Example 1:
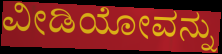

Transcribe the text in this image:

ವೀಡಿಯೋವನ್ನು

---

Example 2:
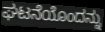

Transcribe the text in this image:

ಘಟನೆಯೊಂದನ್ನು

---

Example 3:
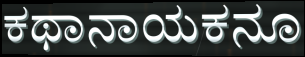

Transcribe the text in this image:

ಕಥಾನಾಯಕನೂ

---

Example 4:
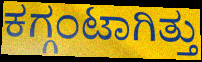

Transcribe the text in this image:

ಕಗ್ಗಂಟಾಗಿತ್ತು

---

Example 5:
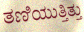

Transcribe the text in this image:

ತಣಿಯುತ್ತಿತ್ತು